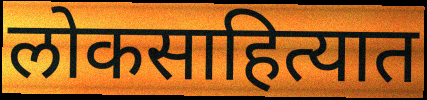
लोकसाहित्यात